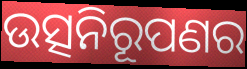
ଉତ୍ସନିରୂପଣର